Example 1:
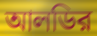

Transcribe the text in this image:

আলডির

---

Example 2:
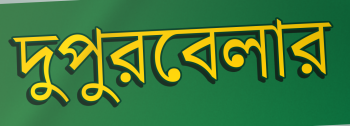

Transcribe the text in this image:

দুপুরবেলার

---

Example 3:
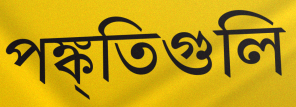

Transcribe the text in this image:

পঙ্ক্তিগুলি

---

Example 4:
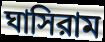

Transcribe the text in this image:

ঘাসিরাম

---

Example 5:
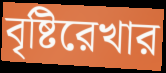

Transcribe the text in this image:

বৃষ্টিরেখার